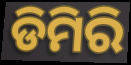
ଡିମିରି